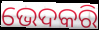
ଭେଦକରି